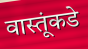
वास्तूंकडे